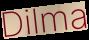
Dilma